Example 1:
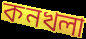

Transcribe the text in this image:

কনখলা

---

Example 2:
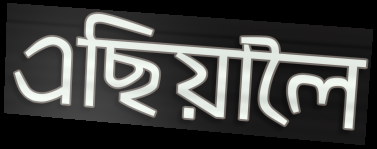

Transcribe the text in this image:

এছিয়ালৈ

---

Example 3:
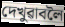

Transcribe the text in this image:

দেখুৱাবলৈ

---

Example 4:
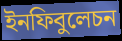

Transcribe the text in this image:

ইনফিবুলেচন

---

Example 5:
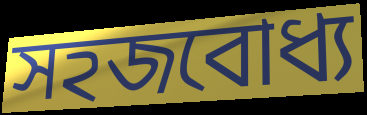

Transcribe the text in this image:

সহজবোধ্য